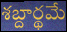
శబ్దార్థమే